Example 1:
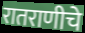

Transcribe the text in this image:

रातराणीचे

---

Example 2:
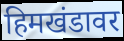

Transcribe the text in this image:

हिमखंडावर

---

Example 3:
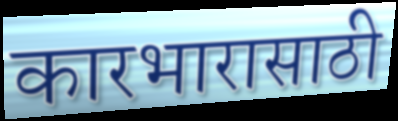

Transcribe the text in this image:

कारभारासाठी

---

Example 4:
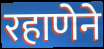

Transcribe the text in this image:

रहाणेने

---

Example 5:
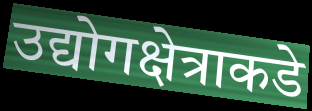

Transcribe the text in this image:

उद्योगक्षेत्राकडे